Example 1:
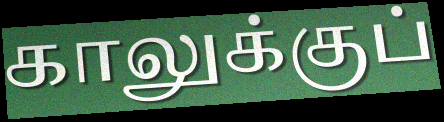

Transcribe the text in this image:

காலுக்குப்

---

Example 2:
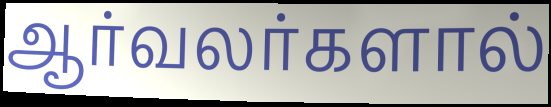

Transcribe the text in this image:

ஆர்வலர்களால்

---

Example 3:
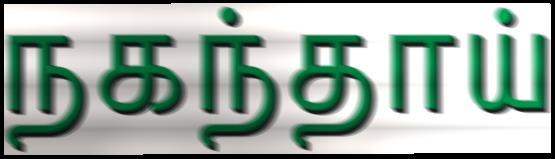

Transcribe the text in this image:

நகந்தாய்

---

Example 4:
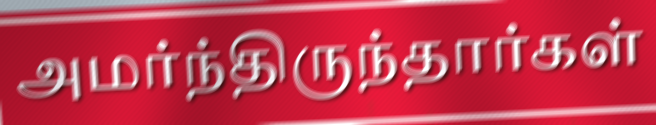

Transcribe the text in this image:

அமர்ந்திருந்தார்கள்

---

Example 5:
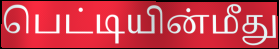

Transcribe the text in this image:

பெட்டியின்மீது